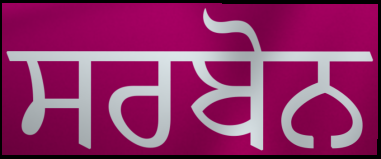
ਸਰਬੋਨ